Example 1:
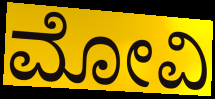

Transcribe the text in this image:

ಮೋವಿ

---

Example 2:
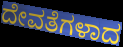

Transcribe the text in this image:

ದೇವತೆಗಳಾದ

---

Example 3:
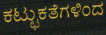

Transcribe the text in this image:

ಕಟ್ಟುಕತೆಗಳಿಂದ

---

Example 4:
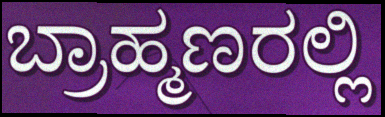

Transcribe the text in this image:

ಬ್ರಾಹ್ಮಣರಲ್ಲಿ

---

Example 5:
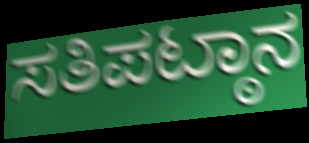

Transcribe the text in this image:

ಸತಿಪಟ್ಠಾನ